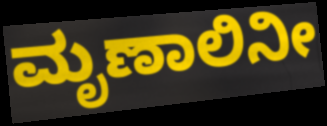
ಮೃಣಾಲಿನೀ